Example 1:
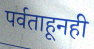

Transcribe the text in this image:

पर्वताहूनही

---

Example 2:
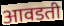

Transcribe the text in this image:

आवडती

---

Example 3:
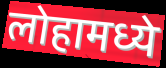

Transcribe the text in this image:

लोहामध्ये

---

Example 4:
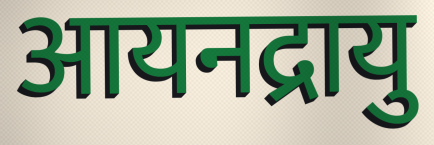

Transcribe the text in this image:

आयनद्रायु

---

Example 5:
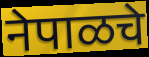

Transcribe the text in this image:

नेपाळचे